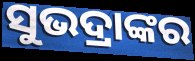
ସୁଭଦ୍ରାଙ୍କର